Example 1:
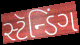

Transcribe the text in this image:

સ્ટૅન્ડિંગ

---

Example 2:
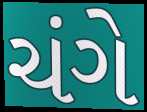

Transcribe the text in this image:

ચંગે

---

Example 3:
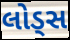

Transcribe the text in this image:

લોડ્સ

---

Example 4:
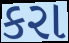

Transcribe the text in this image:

કરા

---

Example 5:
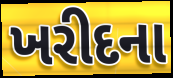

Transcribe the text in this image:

ખરીદના